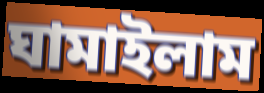
ঘামাইলাম